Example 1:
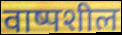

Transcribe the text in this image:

वाष्पशील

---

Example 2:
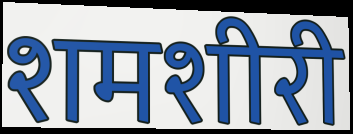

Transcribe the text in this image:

शमशीरी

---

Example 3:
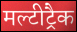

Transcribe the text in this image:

मल्टीट्रैक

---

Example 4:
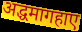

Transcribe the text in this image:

अद्धमागहाए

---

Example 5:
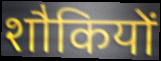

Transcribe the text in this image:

शौकियों